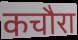
कचौरा